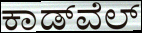
ಕಾಡ್‌ವೆಲ್